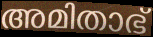
അമിതാഭ്